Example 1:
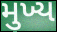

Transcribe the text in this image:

મુખ્ય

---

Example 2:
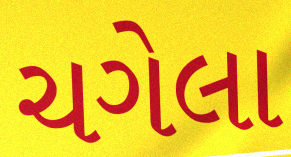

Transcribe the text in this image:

ચગેલા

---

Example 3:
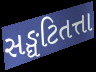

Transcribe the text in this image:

સઙ્ઘટિતત્તા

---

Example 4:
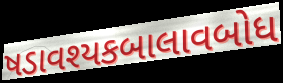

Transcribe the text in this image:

ષડાવશ્યકબાલાવબોધ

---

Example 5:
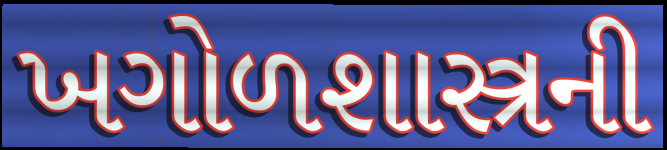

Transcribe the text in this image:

ખગોળશાસ્ત્રની